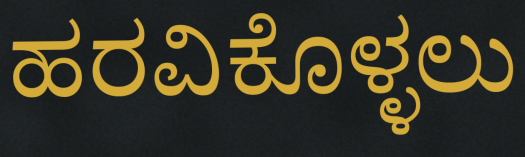
ಹರವಿಕೊಳ್ಳಲು